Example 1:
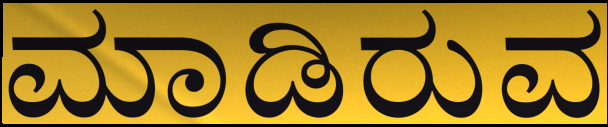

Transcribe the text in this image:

ಮಾಡಿರುವ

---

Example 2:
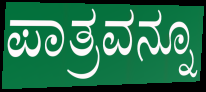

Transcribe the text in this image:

ಪಾತ್ರವನ್ನೂ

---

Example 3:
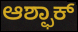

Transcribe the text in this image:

ಆಶ್ಫಾಕ್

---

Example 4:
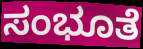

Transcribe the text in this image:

ಸಂಭೂತೆ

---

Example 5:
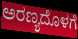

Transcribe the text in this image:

ಅರಣ್ಯದೊಳಗೆ